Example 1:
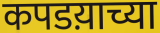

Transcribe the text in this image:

कपडय़ाच्या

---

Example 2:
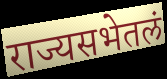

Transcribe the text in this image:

राज्यसभेतलं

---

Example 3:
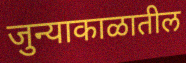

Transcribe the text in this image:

जुन्याकाळातील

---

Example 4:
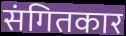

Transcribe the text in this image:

संगितकार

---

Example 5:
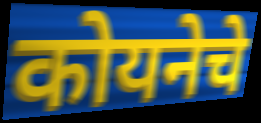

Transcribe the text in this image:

कोयनेचे